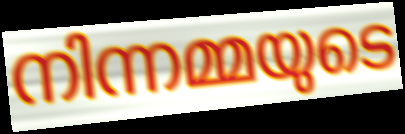
നിന്നമ്മയുടെ